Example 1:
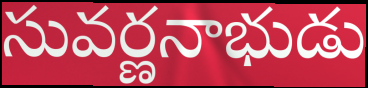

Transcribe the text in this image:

సువర్ణనాభుడు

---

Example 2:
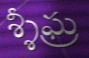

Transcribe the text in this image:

శ్శీఘ్ర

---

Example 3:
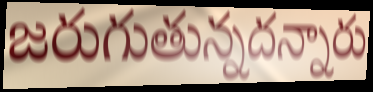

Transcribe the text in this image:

జరుగుతున్నదన్నారు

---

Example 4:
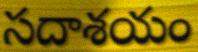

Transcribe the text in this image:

సదాశయం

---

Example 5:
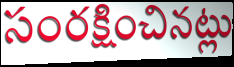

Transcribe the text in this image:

సంరక్షించినట్లు